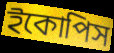
ইকোপিস